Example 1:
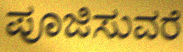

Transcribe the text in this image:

ಪೂಜಿಸುವರೆ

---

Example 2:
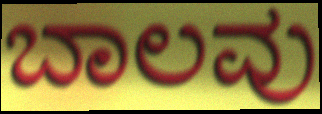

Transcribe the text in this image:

ಬಾಲವು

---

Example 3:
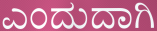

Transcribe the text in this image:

ಎಂದುದಾಗಿ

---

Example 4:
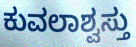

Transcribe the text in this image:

ಕುವಲಾಶ್ವಸ್ತು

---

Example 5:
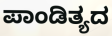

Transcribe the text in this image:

ಪಾಂಡಿತ್ಯದ